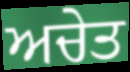
ਅਚੇਤ